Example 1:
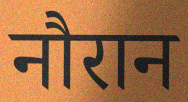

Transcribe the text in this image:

नौरान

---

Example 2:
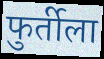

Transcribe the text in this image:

फुर्तीला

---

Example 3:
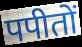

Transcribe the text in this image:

पपीतों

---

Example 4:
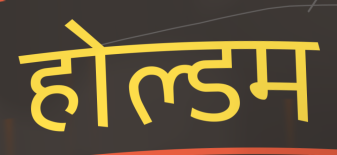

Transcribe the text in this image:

होल्डम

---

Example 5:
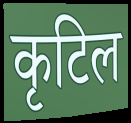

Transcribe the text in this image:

कृटिल